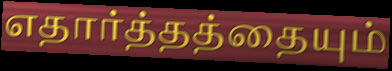
எதார்த்தத்தையும்